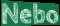
Nebo